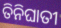
ତିନିଘାତୀ